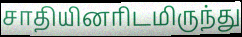
சாதியினரிடமிருந்து